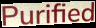
Purified